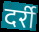
दर्री